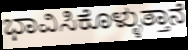
ಭಾವಿಸಿಕೊಳ್ಳುತ್ತಾನೆ